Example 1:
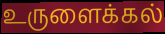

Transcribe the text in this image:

உருளைக்கல்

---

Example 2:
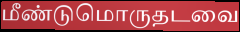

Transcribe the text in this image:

மீண்டுமொருதடவை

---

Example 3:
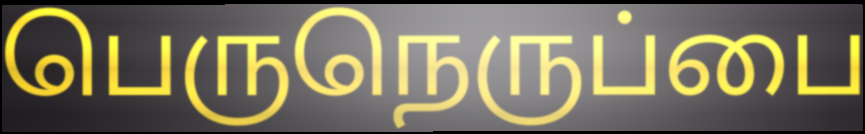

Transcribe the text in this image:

பெருநெருப்பை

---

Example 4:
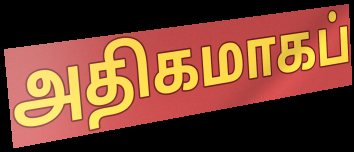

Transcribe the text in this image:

அதிகமாகப்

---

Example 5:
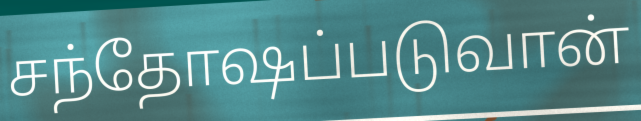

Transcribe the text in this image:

சந்தோஷப்படுவான்